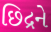
છિદ્રને